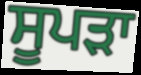
ਸੂਪੜਾ